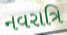
નવરાત્રિ